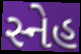
સ્નેહ